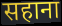
सहाना